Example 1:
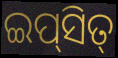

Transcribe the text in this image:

ଇପ୍‌ସିତ୍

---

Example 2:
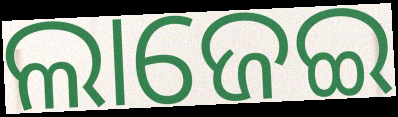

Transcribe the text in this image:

ଲାଜେଇ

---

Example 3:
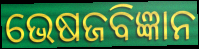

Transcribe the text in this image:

ଭେଷଜବିଜ୍ଞାନ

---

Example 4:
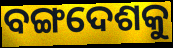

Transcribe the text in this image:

ବଙ୍ଗଦେଶକୁ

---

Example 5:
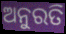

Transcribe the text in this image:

ଅନୁରତି